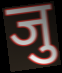
जु